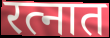
रत्नात